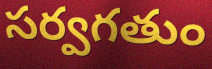
సర్వగతుం